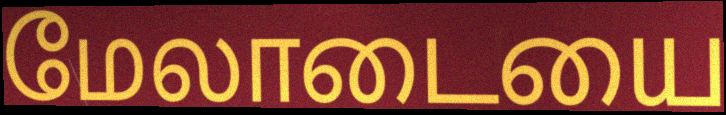
மேலாடையை